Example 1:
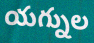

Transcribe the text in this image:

యగ్నుల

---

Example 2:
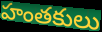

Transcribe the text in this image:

హంతకులు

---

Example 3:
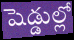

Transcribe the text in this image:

షెడ్డుల్లో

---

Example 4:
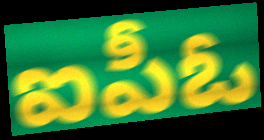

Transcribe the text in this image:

ఐపీఓ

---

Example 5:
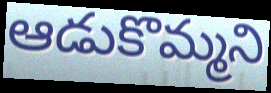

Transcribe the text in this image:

ఆడుకొమ్మని